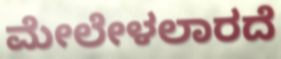
ಮೇಲೇಳಲಾರದೆ